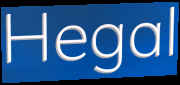
Hegal